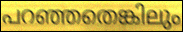
പറഞ്ഞതെങ്കിലും